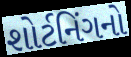
શોર્ટનિંગનો